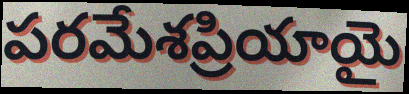
పరమేశప్రియాయై